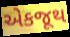
એકજૂથ